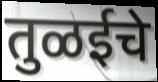
तुळईचे